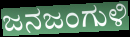
ಜನಜಂಗುಳಿ